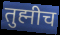
तुह्मीच